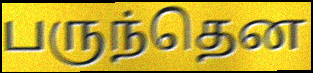
பருந்தென